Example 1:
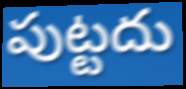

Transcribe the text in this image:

పుట్టదు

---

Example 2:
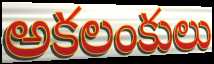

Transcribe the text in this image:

అకలంకులు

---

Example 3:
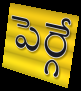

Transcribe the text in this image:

పెర్గే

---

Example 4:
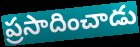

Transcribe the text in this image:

ప్రసాదించాడు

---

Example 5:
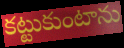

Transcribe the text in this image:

కట్టుకుంటాను